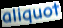
aliquot